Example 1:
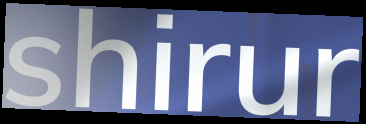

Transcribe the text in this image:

shirur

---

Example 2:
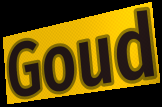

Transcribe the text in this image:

Goud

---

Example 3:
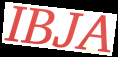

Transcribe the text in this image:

IBJA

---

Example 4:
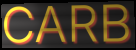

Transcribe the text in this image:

CARB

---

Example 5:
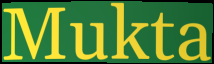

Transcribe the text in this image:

Mukta